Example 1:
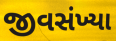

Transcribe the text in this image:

જીવસંખ્યા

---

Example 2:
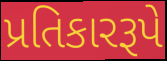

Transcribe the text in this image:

પ્રતિકારરૂપે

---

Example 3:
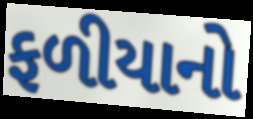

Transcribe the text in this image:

ફળીયાનો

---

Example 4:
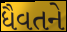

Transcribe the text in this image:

ધૈવતને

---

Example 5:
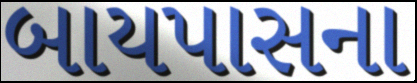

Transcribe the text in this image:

બાયપાસના